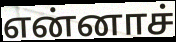
என்னாச்